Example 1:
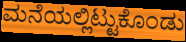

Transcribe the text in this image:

ಮನೆಯಲ್ಲಿಟ್ಟುಕೊಂಡು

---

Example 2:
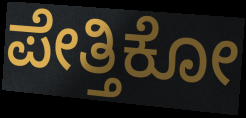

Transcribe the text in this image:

ಪೇತ್ತಿಕೋ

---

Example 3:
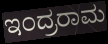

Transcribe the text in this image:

ಇಂದ್ರರಾಮ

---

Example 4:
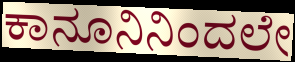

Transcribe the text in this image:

ಕಾನೂನಿನಿಂದಲೇ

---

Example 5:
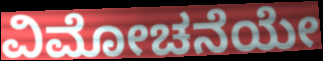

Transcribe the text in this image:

ವಿಮೋಚನೆಯೇ